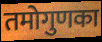
तमोगुणका